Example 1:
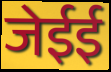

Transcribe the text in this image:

जेईई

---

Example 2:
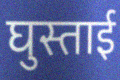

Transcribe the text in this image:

घुस्ताई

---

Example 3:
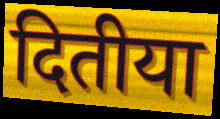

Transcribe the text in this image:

दितीया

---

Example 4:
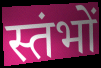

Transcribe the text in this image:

स्तंभों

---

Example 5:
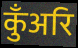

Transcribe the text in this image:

कुँअरि